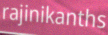
rajinikanths